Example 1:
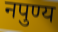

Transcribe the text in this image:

नपुण्य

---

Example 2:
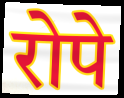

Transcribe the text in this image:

रोपे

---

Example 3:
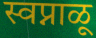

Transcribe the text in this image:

स्वप्नाळू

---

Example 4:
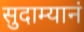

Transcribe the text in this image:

सुदाम्यानं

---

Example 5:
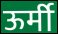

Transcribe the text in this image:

ऊर्मी